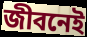
জীবনেই